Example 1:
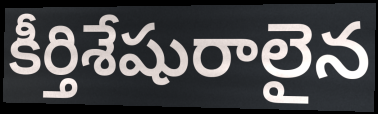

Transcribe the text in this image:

కీర్తిశేషురాలైన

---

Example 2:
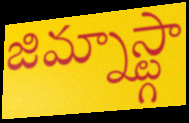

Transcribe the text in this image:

జిమ్నాస్ట్గా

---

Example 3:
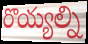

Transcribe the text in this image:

రొయ్యల్ని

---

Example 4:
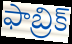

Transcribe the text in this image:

ఫాబ్రిక్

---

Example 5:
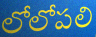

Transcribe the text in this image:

లోలోపలి